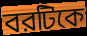
বরটিকে